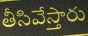
తీసివేస్తారు